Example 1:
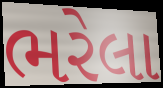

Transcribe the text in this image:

ભરેલા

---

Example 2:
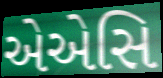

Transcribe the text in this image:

એએસિ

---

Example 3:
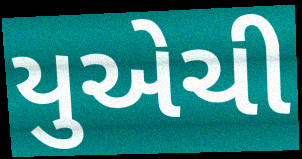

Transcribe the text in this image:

યુએચી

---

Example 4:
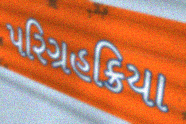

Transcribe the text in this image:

પરિગ્રહક્રિયા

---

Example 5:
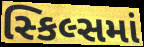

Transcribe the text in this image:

સ્કિલ્સમાં